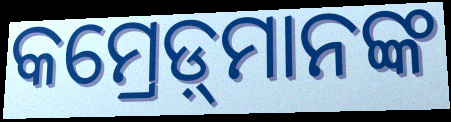
କମ୍ରେଡ଼୍‌ମାନଙ୍କ